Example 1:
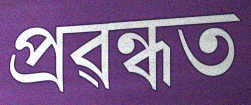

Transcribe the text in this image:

প্ৰৱন্ধত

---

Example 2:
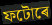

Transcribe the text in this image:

ফটোৰে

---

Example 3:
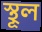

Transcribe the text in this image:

স্থূল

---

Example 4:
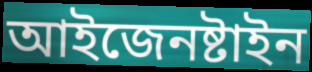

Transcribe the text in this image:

আইজেনষ্টাইন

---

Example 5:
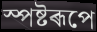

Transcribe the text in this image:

স্পষ্টৰূপে